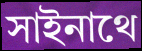
সাইনাথে